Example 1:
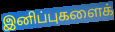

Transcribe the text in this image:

இனிப்புகளைக்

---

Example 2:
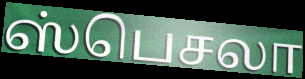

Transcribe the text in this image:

ஸ்பெசலா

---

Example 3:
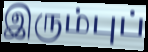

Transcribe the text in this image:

இரும்புப்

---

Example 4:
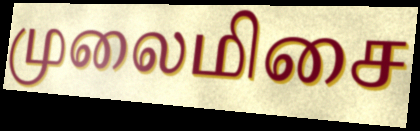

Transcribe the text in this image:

முலைமிசை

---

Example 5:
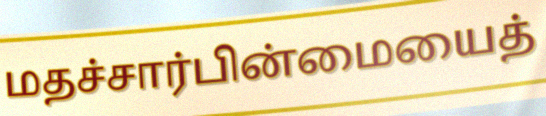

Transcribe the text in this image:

மதச்சார்பின்மையைத்